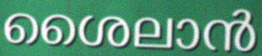
ശൈലാൻ